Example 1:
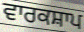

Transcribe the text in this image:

ਵਾਰਕਸ਼ਾਪ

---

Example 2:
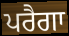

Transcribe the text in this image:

ਪਰੈਗਾ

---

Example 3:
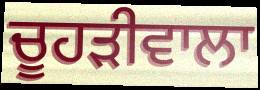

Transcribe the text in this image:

ਚੂਹੜੀਵਾਲਾ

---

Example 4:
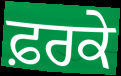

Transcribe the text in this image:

ਫ਼ਰਕੇ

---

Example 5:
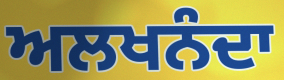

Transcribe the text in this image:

ਅਲਖਨੰਦਾ